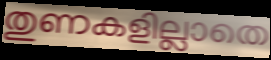
തുണകളില്ലാതെ